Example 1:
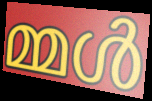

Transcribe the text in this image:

മ്മൾ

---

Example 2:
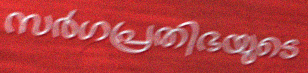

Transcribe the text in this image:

സർഗപ്രതിഭയുടെ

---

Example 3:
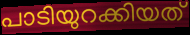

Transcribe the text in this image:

പാടിയുറക്കിയത്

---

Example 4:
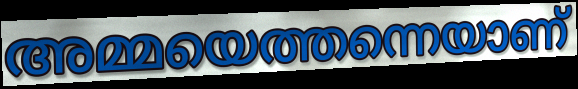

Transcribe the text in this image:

അമ്മയെത്തന്നെയാണ്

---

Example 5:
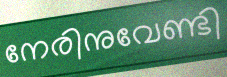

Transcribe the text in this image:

നേരിനുവേണ്ടി